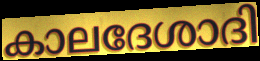
കാലദേശാദി